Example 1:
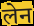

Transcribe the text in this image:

लेन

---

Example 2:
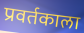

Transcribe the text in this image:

प्रवर्तकाला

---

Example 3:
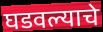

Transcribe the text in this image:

घडवल्याचे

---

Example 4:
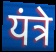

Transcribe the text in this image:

यंत्रे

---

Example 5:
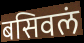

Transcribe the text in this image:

बसिवलं